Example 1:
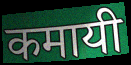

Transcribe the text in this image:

कमायी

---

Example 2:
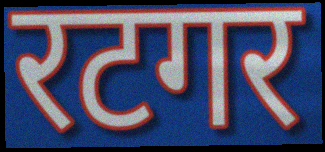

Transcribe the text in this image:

रटगर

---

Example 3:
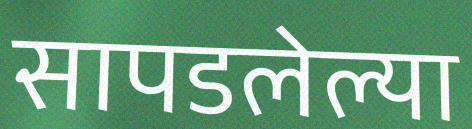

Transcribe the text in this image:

सापडलेल्या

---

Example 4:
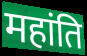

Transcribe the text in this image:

महांति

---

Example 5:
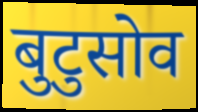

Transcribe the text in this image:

बुटुसोव